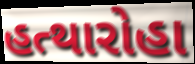
હત્થારોહા